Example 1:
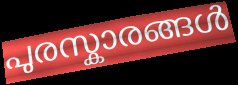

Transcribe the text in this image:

പുരസ്കാരങ്ങൾ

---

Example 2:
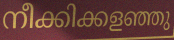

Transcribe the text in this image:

നീക്കിക്കളഞ്ഞു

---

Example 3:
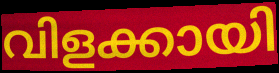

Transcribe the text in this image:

വിളക്കായി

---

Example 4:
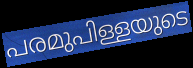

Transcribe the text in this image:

പരമുപിള്ളയുടെ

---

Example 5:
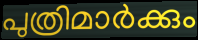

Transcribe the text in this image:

പുത്രിമാർക്കും